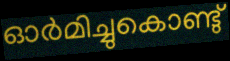
ഓർമിച്ചുകൊണ്ടു്